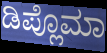
ಡಿಪ್ಲೊಮಾ